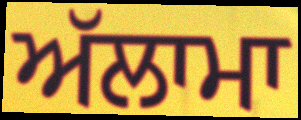
ਅੱਲਾਮਾ